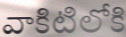
వాకిటిలోకి